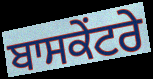
ਬਾਸਕੇਂਟਰੇ